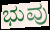
ಭುವು